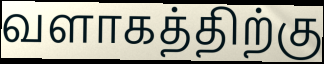
வளாகத்திற்கு